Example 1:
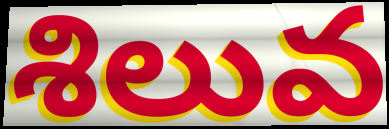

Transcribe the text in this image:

శిలువ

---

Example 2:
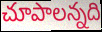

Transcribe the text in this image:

చూపాలన్నది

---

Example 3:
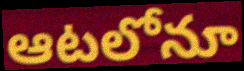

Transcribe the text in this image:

ఆటలోనూ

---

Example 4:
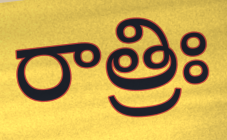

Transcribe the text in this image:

రాత్రిః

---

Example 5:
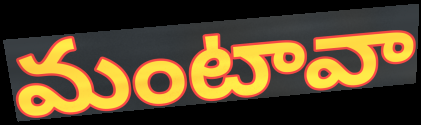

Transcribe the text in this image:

మంటావా